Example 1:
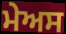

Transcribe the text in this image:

ਮੇਅਸ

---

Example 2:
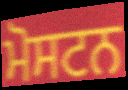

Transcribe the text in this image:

ਮੋਸਟਨ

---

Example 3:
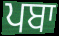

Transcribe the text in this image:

ਪਬਾ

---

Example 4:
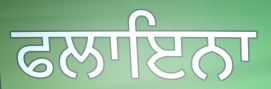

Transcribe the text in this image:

ਫਲਾਇਨਾ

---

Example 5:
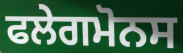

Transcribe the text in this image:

ਫਲੇਗਮੋਨਸ